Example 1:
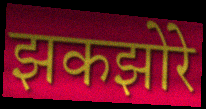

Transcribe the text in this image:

झकझोरे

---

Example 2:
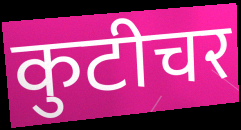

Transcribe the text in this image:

कुटीचर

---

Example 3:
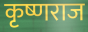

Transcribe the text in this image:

कृष्णराज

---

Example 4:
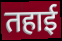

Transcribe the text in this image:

तहाई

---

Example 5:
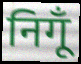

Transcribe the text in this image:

निगूँ